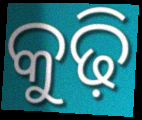
କୁଢ଼ି